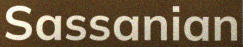
Sassanian